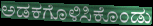
ಅಡಕಗೊಳಿಸಿಕೊಂಡು